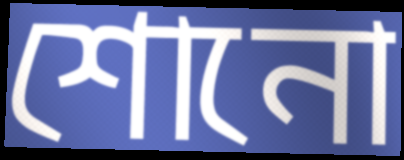
শোনো